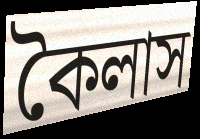
কৈলাস